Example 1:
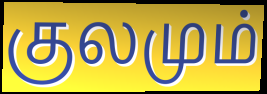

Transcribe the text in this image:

குலமும்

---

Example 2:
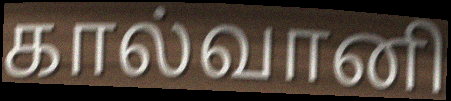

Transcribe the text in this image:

கால்வானி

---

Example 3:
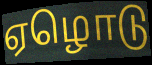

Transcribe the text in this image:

ஏழொடு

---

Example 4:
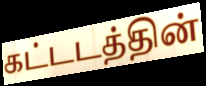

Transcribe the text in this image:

கட்டடத்தின்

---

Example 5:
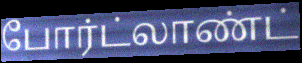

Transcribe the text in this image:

போர்ட்லாண்ட்